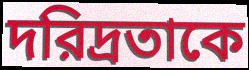
দরিদ্রতাকে